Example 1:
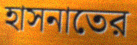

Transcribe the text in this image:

হাসনাতের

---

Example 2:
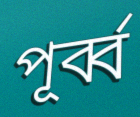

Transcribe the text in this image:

পূর্ব্ব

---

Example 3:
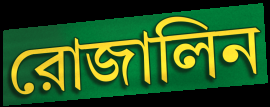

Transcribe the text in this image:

রোজালিন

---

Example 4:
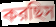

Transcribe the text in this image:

করছিস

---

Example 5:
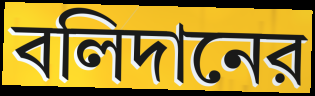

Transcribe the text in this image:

বলিদানের